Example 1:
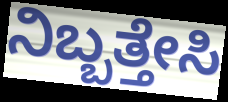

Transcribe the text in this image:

ನಿಬ್ಬತ್ತೇಸಿ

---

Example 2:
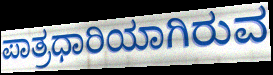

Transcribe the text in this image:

ಪಾತ್ರಧಾರಿಯಾಗಿರುವ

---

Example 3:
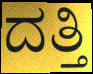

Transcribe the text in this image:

ದತ್ತಿ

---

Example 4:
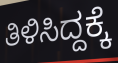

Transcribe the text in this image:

ತಿಳಿಸಿದ್ದಕ್ಕೆ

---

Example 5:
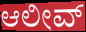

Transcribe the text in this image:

ಆಲೀವ್